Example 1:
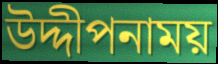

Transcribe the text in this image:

উদ্দীপনাময়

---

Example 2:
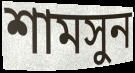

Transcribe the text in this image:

শামসুন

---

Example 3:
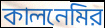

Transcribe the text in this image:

কালনেমির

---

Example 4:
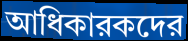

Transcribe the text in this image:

আধিকারকদের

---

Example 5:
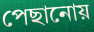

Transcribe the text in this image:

পেছানোয়